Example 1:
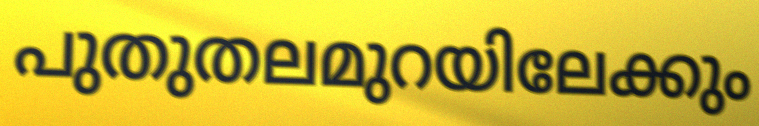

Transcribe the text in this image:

പുതുതലമുറയിലേക്കും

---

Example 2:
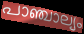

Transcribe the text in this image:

പാഞ്ചാല്യം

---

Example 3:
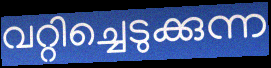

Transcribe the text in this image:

വറ്റിച്ചെടുക്കുന്ന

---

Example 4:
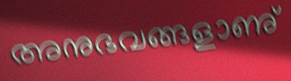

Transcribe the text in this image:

അനുഭവങ്ങളാണു്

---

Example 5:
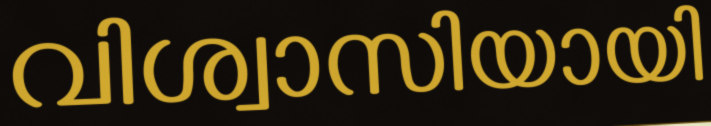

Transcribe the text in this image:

വിശ്വാസിയായി